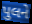
પુલને